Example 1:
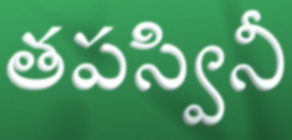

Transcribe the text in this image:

తపస్వినీ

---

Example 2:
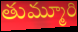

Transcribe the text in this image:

తుమ్మూరి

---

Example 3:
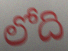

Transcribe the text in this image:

లోది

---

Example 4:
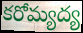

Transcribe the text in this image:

కరోమ్యద్య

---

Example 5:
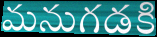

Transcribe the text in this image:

మనుగడకి